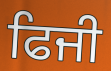
ਫਿਜੀ